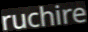
ruchire